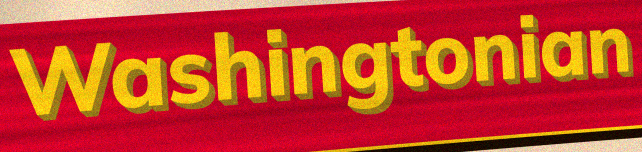
Washingtonian